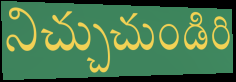
నిచ్చుచుండిరి